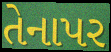
તેનાપર